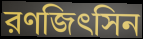
রণজিৎসিন